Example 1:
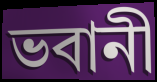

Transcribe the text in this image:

ভবানী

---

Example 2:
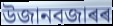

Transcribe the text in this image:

উজানবজাৰৰ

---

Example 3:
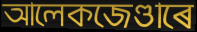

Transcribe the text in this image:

আলেকজেণ্ডাৰে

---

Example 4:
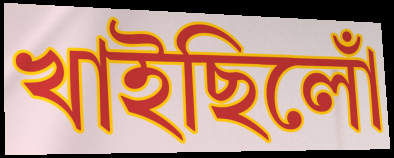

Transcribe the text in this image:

খাইছিলোঁ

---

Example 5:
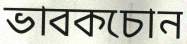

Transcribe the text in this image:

ভাবকচোন